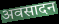
अवसादन